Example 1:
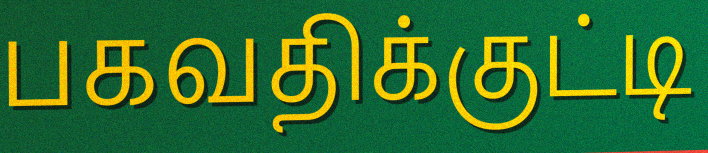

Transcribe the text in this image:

பகவதிக்குட்டி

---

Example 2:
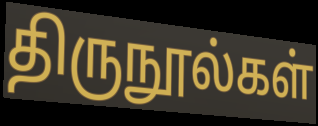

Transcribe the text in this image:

திருநூல்கள்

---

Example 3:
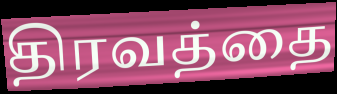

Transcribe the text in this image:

திரவத்தை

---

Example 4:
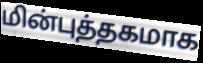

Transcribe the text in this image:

மின்புத்தகமாக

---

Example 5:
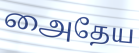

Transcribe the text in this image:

அைதேய